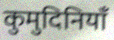
कुमुदिनियाँ